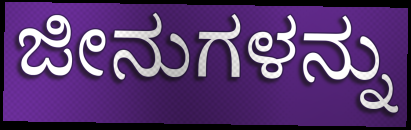
ಜೀನುಗಳನ್ನು